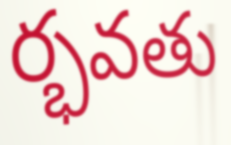
ర్భవతు